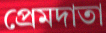
প্রেমদাতা